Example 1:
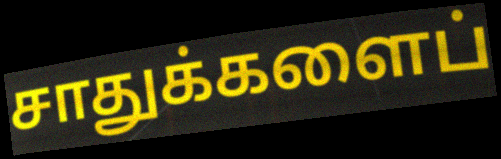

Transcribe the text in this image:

சாதுக்களைப்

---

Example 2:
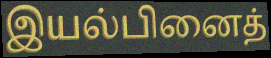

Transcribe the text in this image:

இயல்பினைத்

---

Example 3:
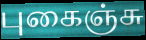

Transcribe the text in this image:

புகைஞ்சு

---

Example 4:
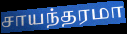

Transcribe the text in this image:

சாயந்தரமா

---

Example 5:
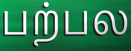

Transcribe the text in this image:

பற்பல